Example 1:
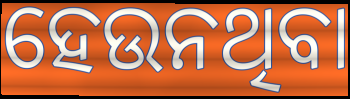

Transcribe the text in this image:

ହେଉନଥିବା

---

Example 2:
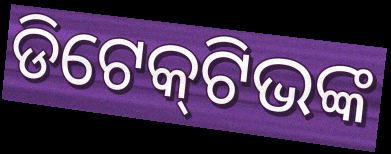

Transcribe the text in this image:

ଡିଟେକ୍‌ଟିଭଙ୍କ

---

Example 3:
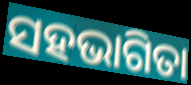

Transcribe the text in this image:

ସହଭାଗିତା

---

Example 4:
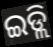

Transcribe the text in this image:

ଇଡ୍ଲି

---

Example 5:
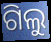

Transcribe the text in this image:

ଗିଲୁ